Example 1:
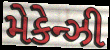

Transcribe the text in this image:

મેકેન્ઝી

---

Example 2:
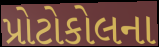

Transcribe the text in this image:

પ્રોટોકોલના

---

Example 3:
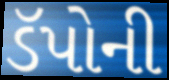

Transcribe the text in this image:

ડૅપોની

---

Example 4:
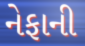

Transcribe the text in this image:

નેફાની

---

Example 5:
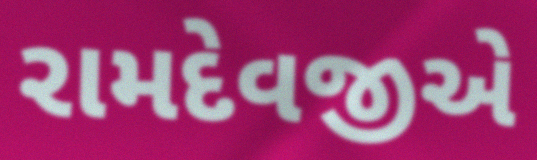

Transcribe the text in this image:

રામદેવજીએ